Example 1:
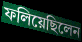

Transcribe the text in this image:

ফলিয়েছিলেন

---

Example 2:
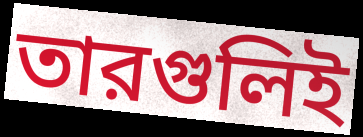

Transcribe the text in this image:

তারগুলিই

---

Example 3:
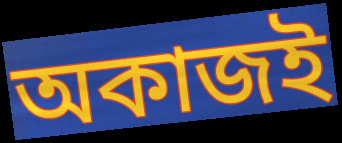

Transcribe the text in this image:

অকাজই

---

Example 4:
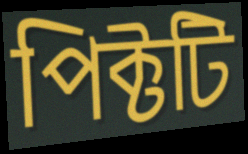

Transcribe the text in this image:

পিক্টটি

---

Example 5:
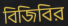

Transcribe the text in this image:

বিজিবির